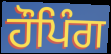
ਹੌਪਿੰਗ